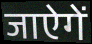
जाऐगें